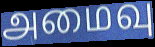
அமைவு